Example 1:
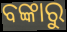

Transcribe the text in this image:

ବଙ୍କାରୁ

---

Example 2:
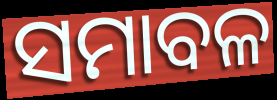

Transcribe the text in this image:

ସମାବଳ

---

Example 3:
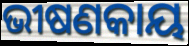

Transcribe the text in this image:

ଭୀଷଣକାୟ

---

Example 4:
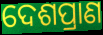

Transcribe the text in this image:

ଦେଶପ୍ରାଣ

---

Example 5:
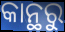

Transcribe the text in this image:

କାନ୍ଥରୁ